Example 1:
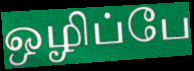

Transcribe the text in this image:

ஒழிப்பே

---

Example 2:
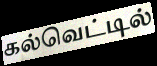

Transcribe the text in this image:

கல்வெட்டில்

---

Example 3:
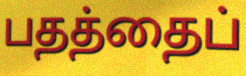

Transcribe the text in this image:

பதத்தைப்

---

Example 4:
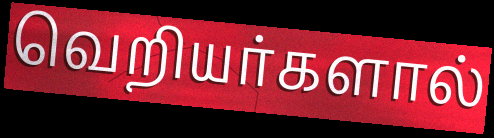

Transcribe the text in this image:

வெறியர்களால்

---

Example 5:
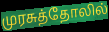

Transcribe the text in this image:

முரசுத்தோலில்